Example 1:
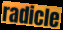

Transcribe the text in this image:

radicle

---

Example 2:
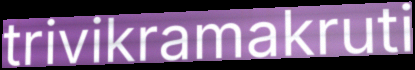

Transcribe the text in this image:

trivikramakruti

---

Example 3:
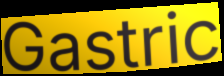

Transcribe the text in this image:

Gastric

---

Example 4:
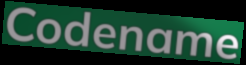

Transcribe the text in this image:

Codename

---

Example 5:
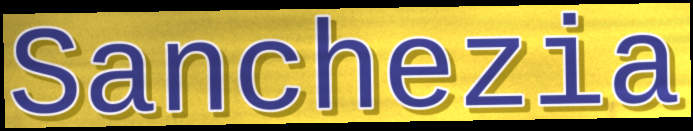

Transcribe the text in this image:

Sanchezia